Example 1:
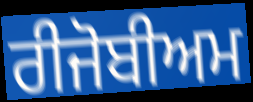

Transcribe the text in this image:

ਰੀਜੋਬੀਅਮ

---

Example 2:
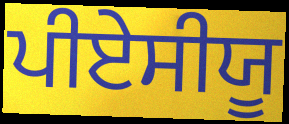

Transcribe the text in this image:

ਪੀਏਸੀਯੂ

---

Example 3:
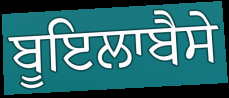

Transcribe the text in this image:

ਬੂਇਲਾਬੈਸੇ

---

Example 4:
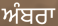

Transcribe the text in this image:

ਅੰਬਰਾ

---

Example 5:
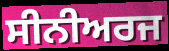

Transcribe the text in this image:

ਸੀਨੀਅਰਜ